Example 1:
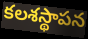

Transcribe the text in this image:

కలశస్థాపన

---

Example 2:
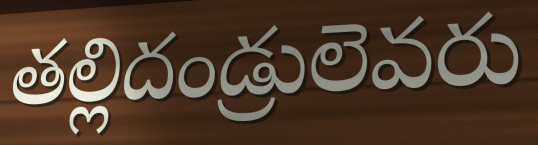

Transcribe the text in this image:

తల్లిదండ్రులెవరు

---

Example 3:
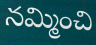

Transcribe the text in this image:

నమ్మించి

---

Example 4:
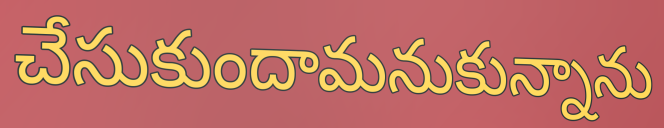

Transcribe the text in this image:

చేసుకుందామనుకున్నాను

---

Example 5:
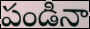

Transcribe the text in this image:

పండినా